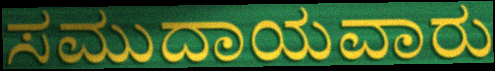
ಸಮುದಾಯವಾರು